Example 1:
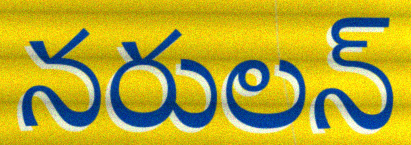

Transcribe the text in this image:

నరులన్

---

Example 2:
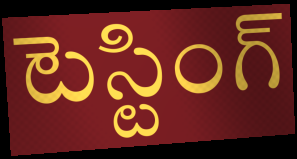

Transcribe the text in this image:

టెస్టింగ్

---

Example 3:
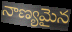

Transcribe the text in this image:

నాణ్యమైన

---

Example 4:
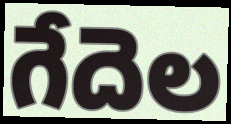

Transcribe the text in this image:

గేదెల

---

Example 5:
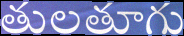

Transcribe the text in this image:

తులతూగు